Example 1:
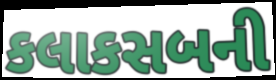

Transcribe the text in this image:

કલાકસબની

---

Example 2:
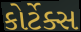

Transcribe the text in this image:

કોર્ટેક્સ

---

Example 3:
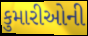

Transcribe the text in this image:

કુમારીઓની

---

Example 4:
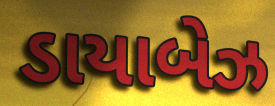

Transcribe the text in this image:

ડાયાબેઝ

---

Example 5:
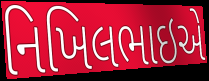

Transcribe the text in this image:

નિખિલભાઇએ